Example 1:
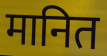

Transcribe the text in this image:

मानित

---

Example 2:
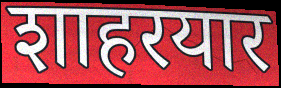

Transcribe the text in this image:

शाहरयार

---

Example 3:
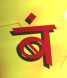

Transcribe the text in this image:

बं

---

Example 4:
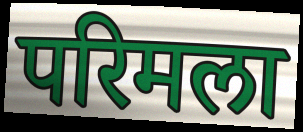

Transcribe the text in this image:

परिमला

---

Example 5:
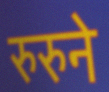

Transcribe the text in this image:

रुरुने